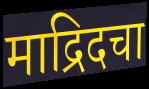
माद्रिदचा